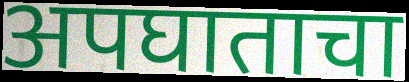
अपघाताचा